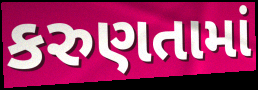
કરુણતામાં